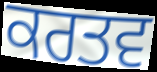
ਕਰਤਵ